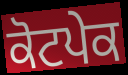
ਕੋਟਪੇਕ